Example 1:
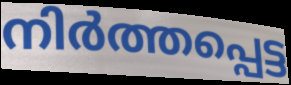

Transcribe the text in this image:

നിർത്തപ്പെട്ട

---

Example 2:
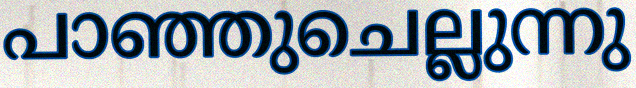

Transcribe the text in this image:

പാഞ്ഞുചെല്ലുന്നു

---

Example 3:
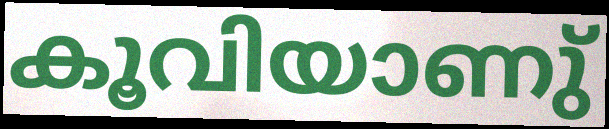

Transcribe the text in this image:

കൂവിയാണു്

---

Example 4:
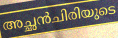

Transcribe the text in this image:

അച്ഛൻചിരിയുടെ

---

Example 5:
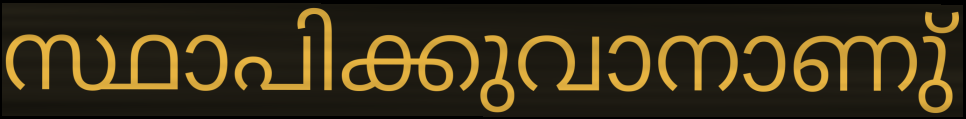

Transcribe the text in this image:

സ്ഥാപിക്കുവാനാണു്